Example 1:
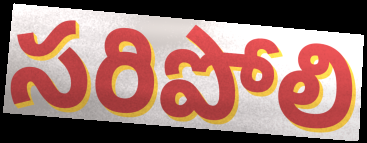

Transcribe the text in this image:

సరిపోలి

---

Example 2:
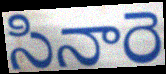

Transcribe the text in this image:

సినారె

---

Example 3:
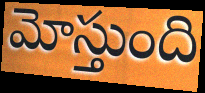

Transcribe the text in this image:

మోస్తుంది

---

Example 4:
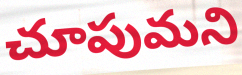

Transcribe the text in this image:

చూపుమని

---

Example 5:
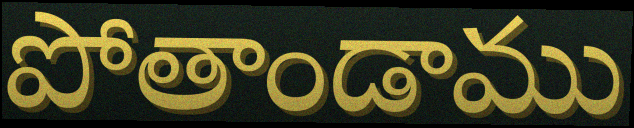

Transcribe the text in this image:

పోతాండాము